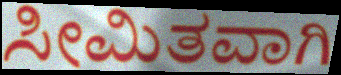
ಸೀಮಿತವಾಗಿ